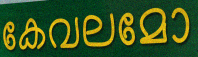
കേവലമോ